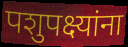
पशुपक्ष्यांना